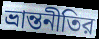
ভ্রান্তনীতির